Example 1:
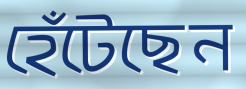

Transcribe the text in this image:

হেঁটেছেন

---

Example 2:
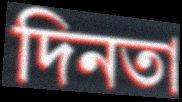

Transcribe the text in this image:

দিনতা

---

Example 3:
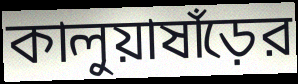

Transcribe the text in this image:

কালুয়াষাঁড়ের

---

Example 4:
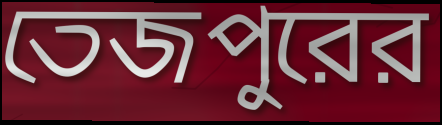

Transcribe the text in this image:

তেজপুরের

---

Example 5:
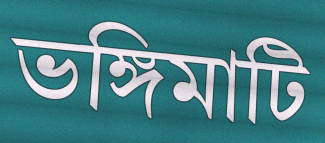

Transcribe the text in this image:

ভঙ্গিমাটি